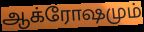
ஆக்ரோஷமும்